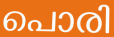
പൊരി